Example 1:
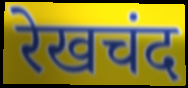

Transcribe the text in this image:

रेखचंद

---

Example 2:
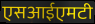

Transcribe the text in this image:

एसआईएमटी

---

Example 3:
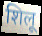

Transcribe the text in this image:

शिलू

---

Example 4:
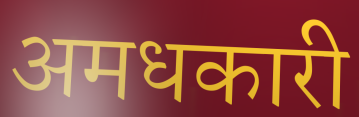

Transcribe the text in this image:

अमधकारी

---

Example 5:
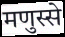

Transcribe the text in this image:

मणुस्से